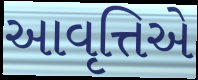
આવૃત્તિએ